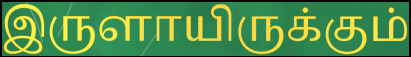
இருளாயிருக்கும்